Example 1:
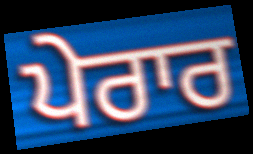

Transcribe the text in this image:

ਪੇਰਾਰ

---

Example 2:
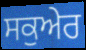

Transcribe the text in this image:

ਸਕੁਅੇਰ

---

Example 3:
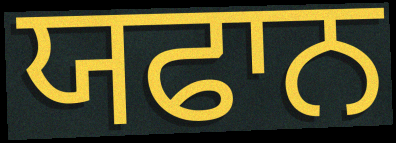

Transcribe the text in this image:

ਯਫਾਨ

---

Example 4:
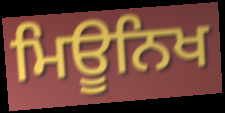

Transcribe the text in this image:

ਮਿਊਨਿਖ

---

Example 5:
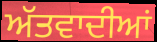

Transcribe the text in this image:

ਅੱਤਵਾਦੀਆਂ